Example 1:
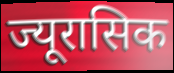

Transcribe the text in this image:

ज्यूरासिक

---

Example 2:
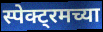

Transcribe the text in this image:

स्पेक्ट्रमच्या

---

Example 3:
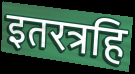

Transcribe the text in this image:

इतरत्रहि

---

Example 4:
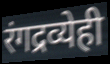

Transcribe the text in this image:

रंगद्रव्येही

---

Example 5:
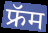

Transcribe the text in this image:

फ्रॅम